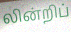
லின்றிப்